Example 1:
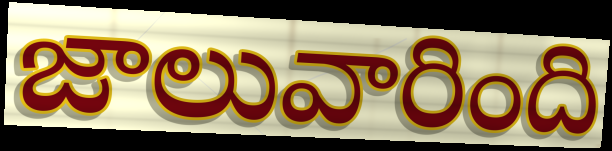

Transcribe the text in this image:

జాలువారింది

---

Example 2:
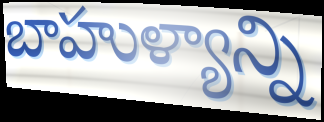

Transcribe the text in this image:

బాహుళ్యాన్ని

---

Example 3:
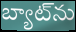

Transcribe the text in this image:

బ్యాట్‌ను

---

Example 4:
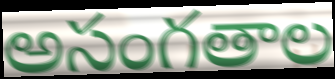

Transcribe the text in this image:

అసంగతాల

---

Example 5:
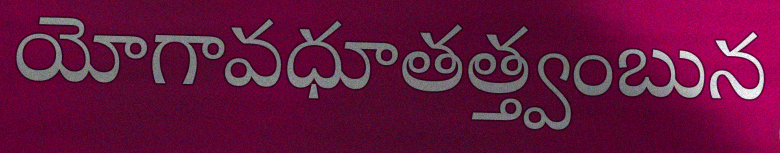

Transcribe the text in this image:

యోగావధూతత్త్వంబున